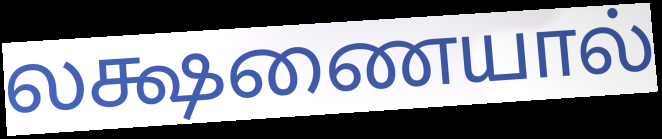
லக்ஷணையால்